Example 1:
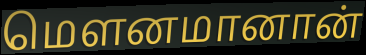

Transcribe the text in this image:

மௌனமானான்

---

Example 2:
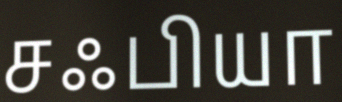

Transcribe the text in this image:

சஃபியா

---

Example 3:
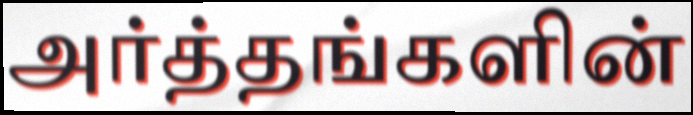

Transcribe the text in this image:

அர்த்தங்களின்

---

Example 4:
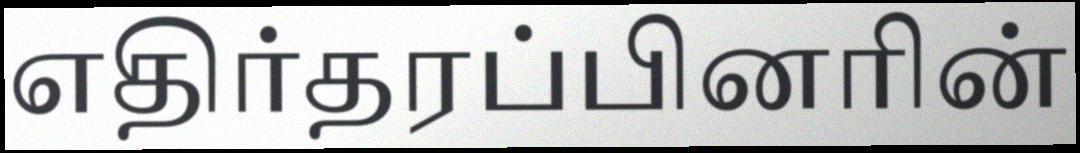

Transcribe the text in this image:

எதிர்தரப்பினரின்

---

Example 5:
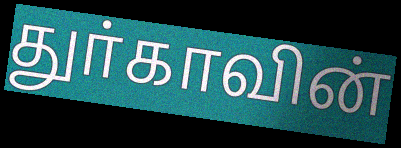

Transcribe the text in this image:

துர்காவின்